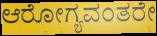
ಆರೋಗ್ಯವಂತರೇ